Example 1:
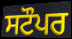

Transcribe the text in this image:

ਸਟੌਪਰ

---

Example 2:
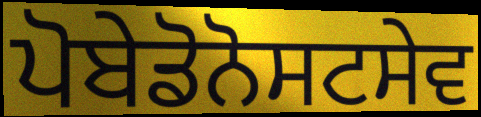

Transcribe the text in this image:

ਪੋਬੇਡੋਨੋਸਟਸੇਵ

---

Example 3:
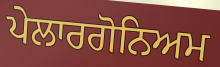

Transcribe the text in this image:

ਪੇਲਾਰਗੋਨਿਅਮ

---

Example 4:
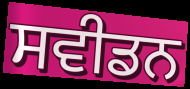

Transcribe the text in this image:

ਸਵੀਡਨ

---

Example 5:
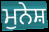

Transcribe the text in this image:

ਮੁਨੇਸ਼